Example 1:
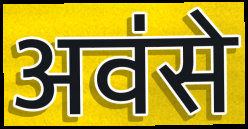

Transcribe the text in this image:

अव॑से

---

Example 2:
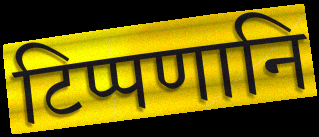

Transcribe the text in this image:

टिप्पणानि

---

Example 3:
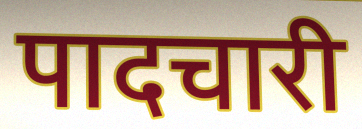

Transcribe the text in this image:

पादचारी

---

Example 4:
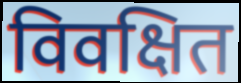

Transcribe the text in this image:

विवक्षित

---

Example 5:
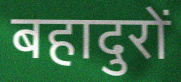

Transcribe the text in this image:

बहादुरों